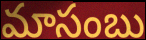
మాసంబు